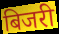
बिजरी